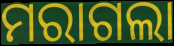
ମରାଗଲା